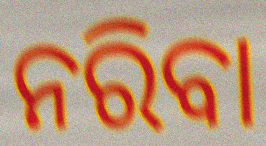
ନରିବା